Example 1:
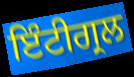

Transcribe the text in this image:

ਇੰਟੀਗ੍ਰਲ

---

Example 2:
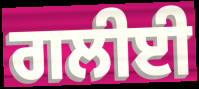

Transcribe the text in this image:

ਗਲੀਈ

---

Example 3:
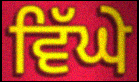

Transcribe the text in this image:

ਵਿੱਘੇ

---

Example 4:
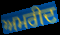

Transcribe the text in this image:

ਅਮਰੀਦ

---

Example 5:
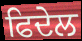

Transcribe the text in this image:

ਫਿਦੇਲ